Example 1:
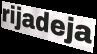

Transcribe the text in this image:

rijadeja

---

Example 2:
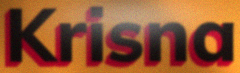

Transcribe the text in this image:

Krisna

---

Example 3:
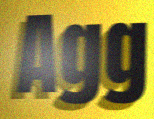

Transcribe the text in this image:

Agg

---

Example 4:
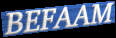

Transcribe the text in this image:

BEFAAM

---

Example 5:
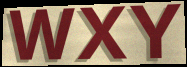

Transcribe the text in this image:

WXY